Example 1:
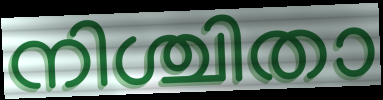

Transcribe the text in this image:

നിശ്ചിതാ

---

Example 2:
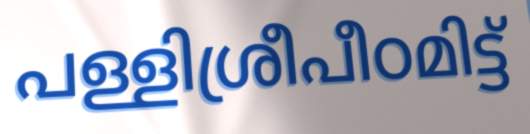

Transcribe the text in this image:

പള്ളിശ്രീപീഠമിട്ട്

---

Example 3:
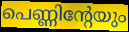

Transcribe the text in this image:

പെണ്ണിന്റേയും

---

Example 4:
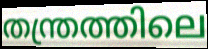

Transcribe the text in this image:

തന്ത്രത്തിലെ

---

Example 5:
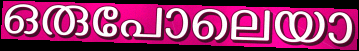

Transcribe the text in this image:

ഒരുപോലെയാ